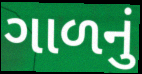
ગાળનું